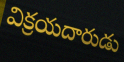
విక్రయదారుడు